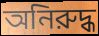
অনিৰুদ্ধ